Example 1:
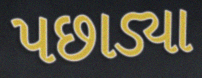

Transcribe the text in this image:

પછાડ્યા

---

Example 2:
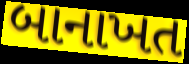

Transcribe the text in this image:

બાનાખત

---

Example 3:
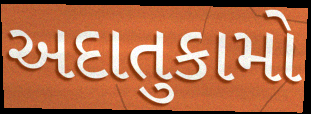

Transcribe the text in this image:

અદાતુકામો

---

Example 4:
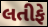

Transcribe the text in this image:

લતીફે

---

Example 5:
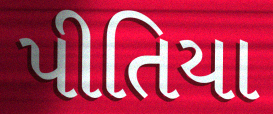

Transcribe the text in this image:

પીતિયા